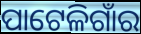
ପାଟେଳିଗାଁର